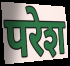
परेश